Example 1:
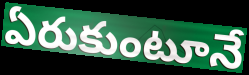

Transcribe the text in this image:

ఏరుకుంటూనే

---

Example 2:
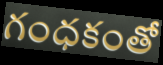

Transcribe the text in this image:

గంధకంతో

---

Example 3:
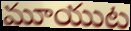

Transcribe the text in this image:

మూయుట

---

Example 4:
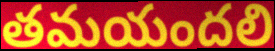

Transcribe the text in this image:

తమయందలి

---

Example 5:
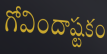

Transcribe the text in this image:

గోవిందాష్టకం